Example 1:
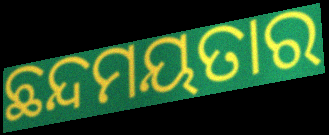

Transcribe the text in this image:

ଛନ୍ଦମୟତାର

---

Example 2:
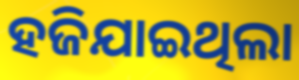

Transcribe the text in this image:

ହଜିଯାଇଥିଲା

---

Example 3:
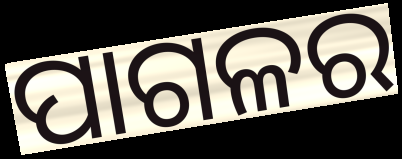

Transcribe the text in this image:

ପାଗଳର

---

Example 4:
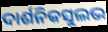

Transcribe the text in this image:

ଦାର୍ଶନିକସୁଲଭ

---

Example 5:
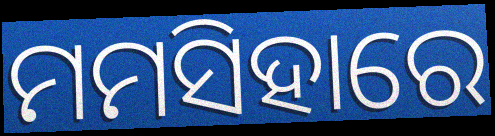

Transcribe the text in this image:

ମମସିହାରେ